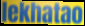
lekhatao